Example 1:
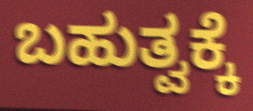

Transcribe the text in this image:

ಬಹುತ್ವಕ್ಕೆ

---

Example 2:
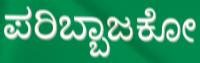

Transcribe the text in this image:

ಪರಿಬ್ಬಾಜಕೋ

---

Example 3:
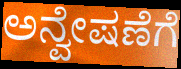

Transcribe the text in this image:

ಅನ್ವೇಷಣೆಗೆ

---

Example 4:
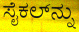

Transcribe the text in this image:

ಸೈಕಲ್‌ನ್ನು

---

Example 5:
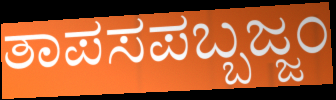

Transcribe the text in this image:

ತಾಪಸಪಬ್ಬಜ್ಜಂ